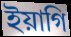
ইয়াগি